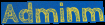
Adminm